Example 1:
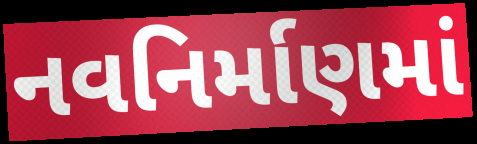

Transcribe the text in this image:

નવનિર્માણમાં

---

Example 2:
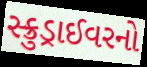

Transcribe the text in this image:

સ્ક્રુડ્રાઈવરનો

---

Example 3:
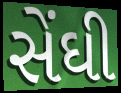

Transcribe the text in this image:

સેંઘી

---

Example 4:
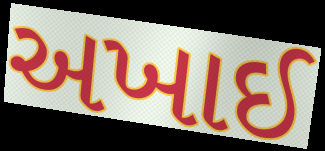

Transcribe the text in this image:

અખાઈ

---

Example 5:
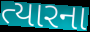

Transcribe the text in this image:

ત્યારના